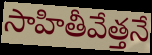
సాహితీవేత్తనే